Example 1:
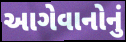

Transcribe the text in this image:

આગેવાનોનું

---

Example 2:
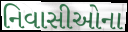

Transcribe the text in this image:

નિવાસીઓના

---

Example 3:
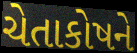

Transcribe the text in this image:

ચેતાકોષને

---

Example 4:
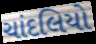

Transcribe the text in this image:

ચાંદલિયો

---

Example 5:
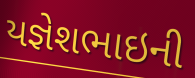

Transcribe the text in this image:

યજ્ઞેશભાઇની